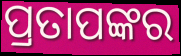
ପ୍ରତାପଙ୍କର